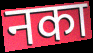
नका